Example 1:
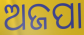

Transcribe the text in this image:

ଅଜପା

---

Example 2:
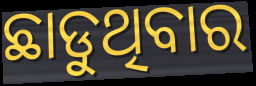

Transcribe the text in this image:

ଛାଡୁଥିବାର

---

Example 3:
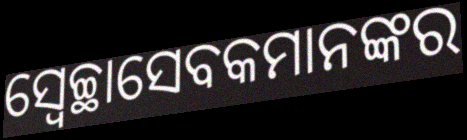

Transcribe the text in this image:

ସ୍ୱେଚ୍ଛାସେବକମାନଙ୍କର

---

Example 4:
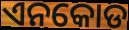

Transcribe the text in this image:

ଏନକୋଡ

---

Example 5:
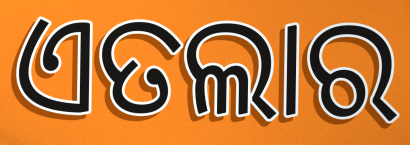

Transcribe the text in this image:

ଏତଲାର